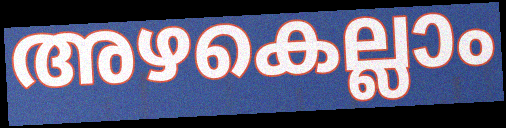
അഴകെല്ലാം